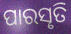
ପାରସୃତି